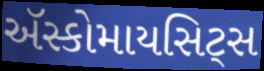
ઍસ્કોમાયસિટ્સ